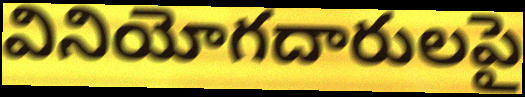
వినియోగదారులపై